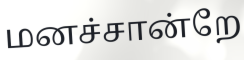
மனச்சான்றே